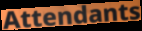
Attendants